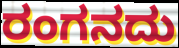
ರಂಗನದು